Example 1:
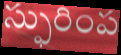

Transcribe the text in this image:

స్ఫురింప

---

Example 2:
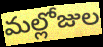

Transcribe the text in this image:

మల్లోజుల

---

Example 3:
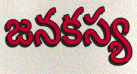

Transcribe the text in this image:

జనకస్య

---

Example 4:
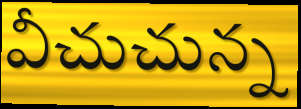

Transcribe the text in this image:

వీచుచున్న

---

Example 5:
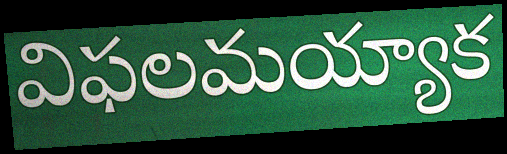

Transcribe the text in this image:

విఫలమయ్యాక